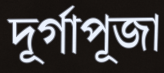
দূর্গাপূজা